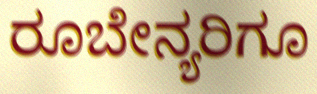
ರೂಬೇನ್ಯರಿಗೂ